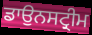
ਡਾਉਨਸਟ੍ਰੀਮ